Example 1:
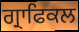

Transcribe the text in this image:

ਗ੍ਰਾਫਿਕਲ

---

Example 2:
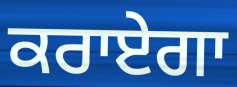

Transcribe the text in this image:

ਕਰਾਏਗਾ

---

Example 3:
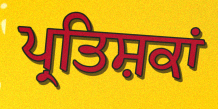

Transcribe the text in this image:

ਪ੍ਰਤਿਸ਼ਕਾਂ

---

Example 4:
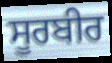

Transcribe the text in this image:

ਸੂਰਬੀਰ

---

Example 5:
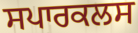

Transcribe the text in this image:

ਸਪਾਰਕਲਸ